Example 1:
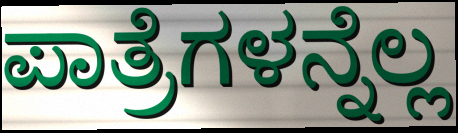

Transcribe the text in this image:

ಪಾತ್ರೆಗಳನ್ನೆಲ್ಲ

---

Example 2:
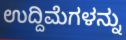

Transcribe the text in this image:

ಉದ್ದಿಮೆಗಳನ್ನು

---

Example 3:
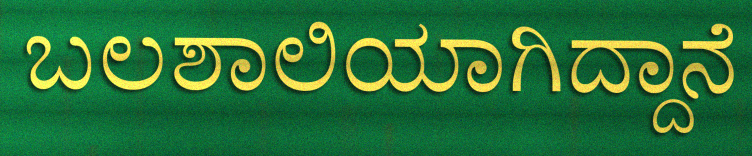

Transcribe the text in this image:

ಬಲಶಾಲಿಯಾಗಿದ್ದಾನೆ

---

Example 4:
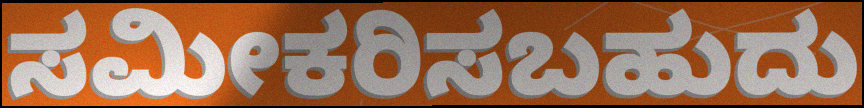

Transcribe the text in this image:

ಸಮೀಕರಿಸಬಹುದು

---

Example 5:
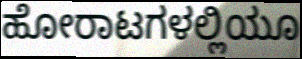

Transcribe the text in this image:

ಹೋರಾಟಗಳಲ್ಲಿಯೂ